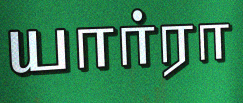
யார்ரா